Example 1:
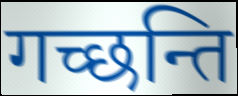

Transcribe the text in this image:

गच्छन्ति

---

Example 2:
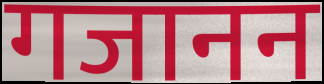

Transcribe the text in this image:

गजानन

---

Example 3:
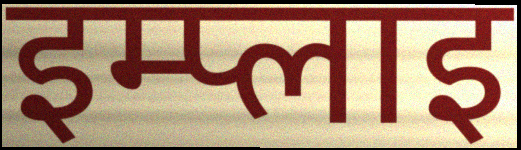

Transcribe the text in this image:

इम्प्लाइ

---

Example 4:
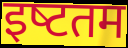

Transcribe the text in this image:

इष्‍टतम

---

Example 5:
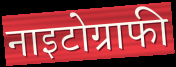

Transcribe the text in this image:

नाइटोग्राफी